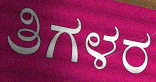
ತಿಗಳರ